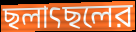
ছলাৎছলের